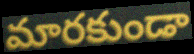
మారకుండా